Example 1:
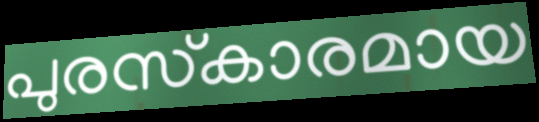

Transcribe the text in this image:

പുരസ്‌കാരമായ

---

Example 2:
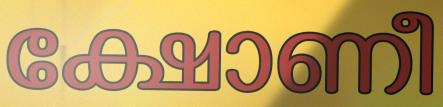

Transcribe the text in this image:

ക്ഷോണീ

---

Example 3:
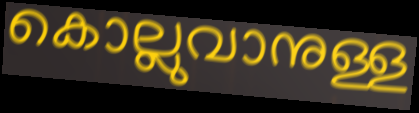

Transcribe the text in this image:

കൊല്ലുവാനുള്ള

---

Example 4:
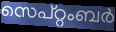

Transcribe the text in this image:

സെപ്റ്റംബർ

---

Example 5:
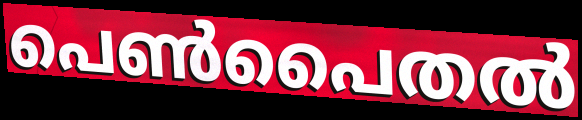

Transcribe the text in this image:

പെൺപൈതൽ